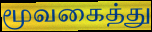
மூவகைத்து